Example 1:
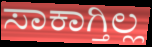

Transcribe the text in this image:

ಸಾಕಾಗ್ತಿಲ್ಲ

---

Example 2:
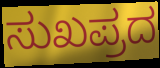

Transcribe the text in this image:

ಸುಖಪ್ರದ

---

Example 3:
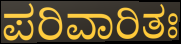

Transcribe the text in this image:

ಪರಿವಾರಿತಃ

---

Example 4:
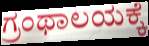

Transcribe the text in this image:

ಗ್ರಂಥಾಲಯಕ್ಕೆ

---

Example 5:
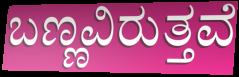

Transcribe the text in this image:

ಬಣ್ಣವಿರುತ್ತವೆ